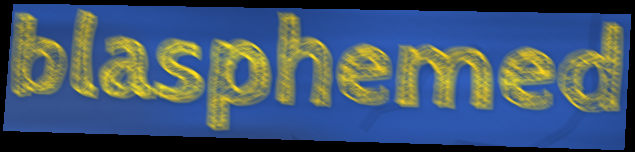
blasphemed